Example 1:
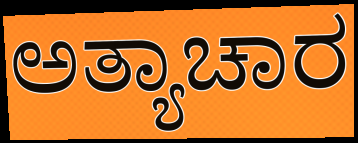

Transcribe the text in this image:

ಅತ್ಯಾಚಾರ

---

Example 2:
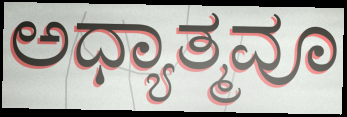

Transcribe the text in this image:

ಅಧ್ಯಾತ್ಮವೂ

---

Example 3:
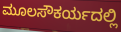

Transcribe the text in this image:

ಮೂಲಸೌಕರ್ಯದಲ್ಲಿ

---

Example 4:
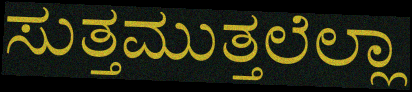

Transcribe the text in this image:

ಸುತ್ತಮುತ್ತಲೆಲ್ಲಾ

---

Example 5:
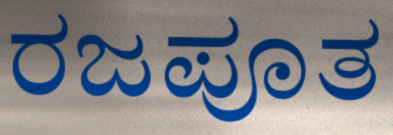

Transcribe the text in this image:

ರಜಪೂತ